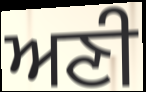
ਅਣੀ